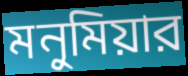
মনুমিয়ার